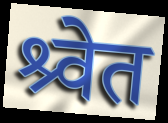
श्र्वेत